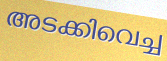
അടക്കിവെച്ച